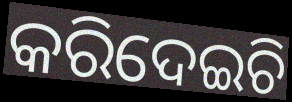
କରିଦେଇଚି